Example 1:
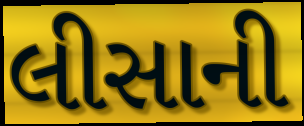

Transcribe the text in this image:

લીસાની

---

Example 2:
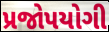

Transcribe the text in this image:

પ્રજોપયોગી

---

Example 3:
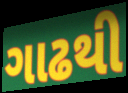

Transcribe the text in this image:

ગાઢથી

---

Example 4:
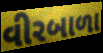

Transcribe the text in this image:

વીરબાળા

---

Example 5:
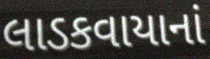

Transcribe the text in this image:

લાડકવાયાનાં